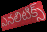
ఎనలిటిక్స్